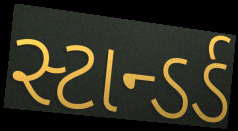
સ્ટાન્ડર્ડ